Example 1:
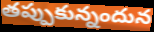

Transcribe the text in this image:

తప్పుకున్నందున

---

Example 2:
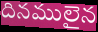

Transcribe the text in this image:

దినములైన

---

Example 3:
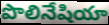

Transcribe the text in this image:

పొలినేషియా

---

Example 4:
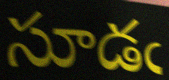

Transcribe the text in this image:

సూడఁ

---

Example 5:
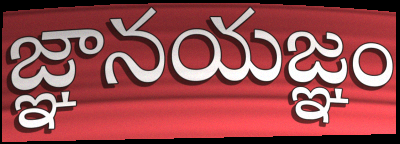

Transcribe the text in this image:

జ్ఞానయజ్ఞం